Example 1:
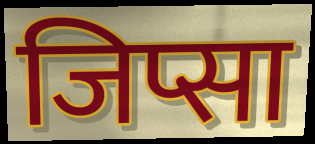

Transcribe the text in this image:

जिप्सा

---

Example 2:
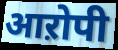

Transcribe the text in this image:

आऱोपी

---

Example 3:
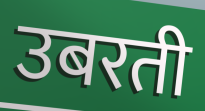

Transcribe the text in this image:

उबरती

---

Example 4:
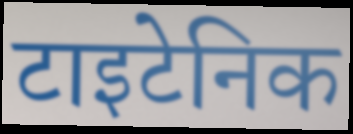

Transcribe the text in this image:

टाइटेनिक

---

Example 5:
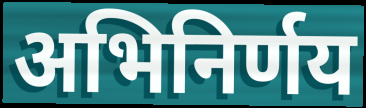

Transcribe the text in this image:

अभिनिर्णय